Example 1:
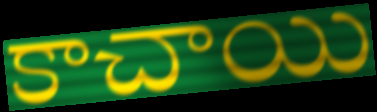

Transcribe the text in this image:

కాచాయి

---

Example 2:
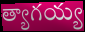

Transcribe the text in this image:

త్యాగయ్య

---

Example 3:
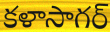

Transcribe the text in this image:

కళాసాగర్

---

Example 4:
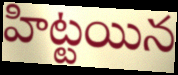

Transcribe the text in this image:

హిట్టయిన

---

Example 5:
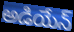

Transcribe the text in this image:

అడియేన్